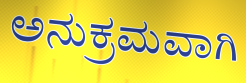
ಅನುಕ್ರಮವಾಗಿ